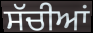
ਸੱਚੀਆਂ